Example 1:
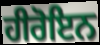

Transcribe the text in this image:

ਹੀਰੋਇਨ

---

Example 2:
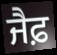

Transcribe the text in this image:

ਜੈਫ਼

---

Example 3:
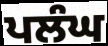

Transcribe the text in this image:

ਪਲੰਘ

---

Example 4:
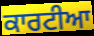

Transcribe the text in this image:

ਕਾਰਟੀਆ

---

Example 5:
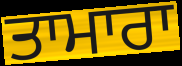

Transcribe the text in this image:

ਤਾਮਾਰਾ